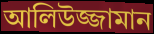
আলিউজ্জামান